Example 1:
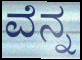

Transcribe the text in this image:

ವೆನ್ನ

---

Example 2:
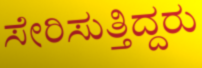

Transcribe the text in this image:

ಸೇರಿಸುತ್ತಿದ್ದರು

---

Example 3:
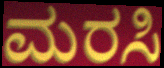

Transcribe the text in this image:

ಮರಸಿ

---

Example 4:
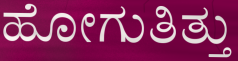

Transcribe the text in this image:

ಹೋಗುತಿತ್ತು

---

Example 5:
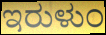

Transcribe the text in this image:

ಇರುಳುಂ